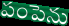
పంపెను